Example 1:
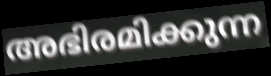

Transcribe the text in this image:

അഭിരമിക്കുന്ന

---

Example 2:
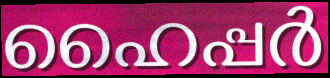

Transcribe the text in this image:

ഹൈപ്പർ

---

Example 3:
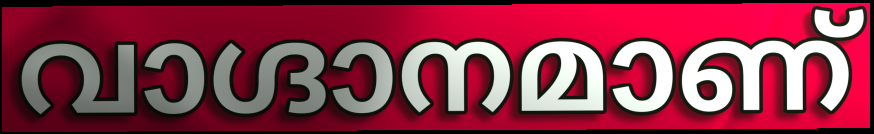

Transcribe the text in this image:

വാഗ്ദാനമാണ്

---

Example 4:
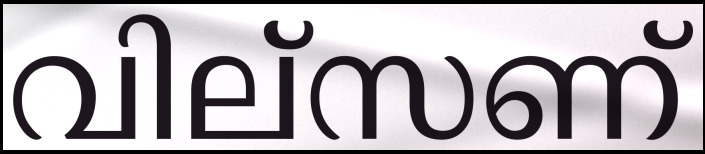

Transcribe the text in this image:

വില്സണ്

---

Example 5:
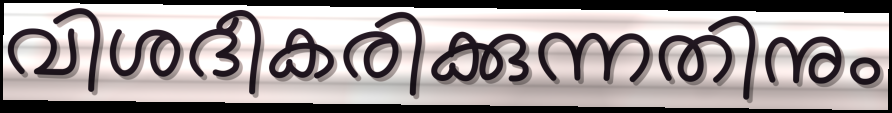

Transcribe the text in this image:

വിശദീകരിക്കുന്നതിനും